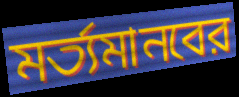
মর্ত্যমানবের